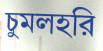
চুমলহরি